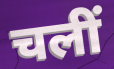
चलीं